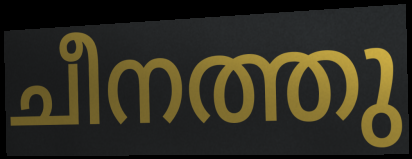
ചീനത്തു